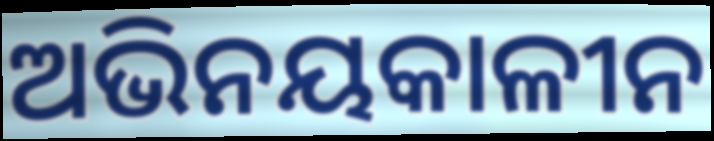
ଅଭିନୟକାଳୀନ